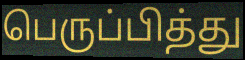
பெருப்பித்து